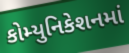
કોમ્યુનિકેશનમાં